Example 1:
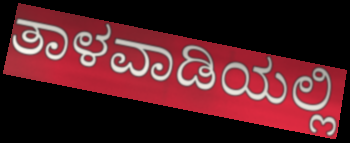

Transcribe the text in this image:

ತಾಳವಾಡಿಯಲ್ಲಿ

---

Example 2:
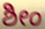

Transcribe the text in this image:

ಶೀಂ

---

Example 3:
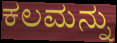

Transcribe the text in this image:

ಕಲಮನ್ನು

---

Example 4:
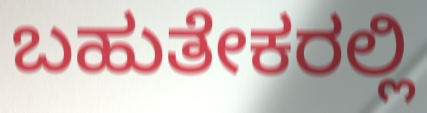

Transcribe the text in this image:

ಬಹುತೇಕರಲ್ಲಿ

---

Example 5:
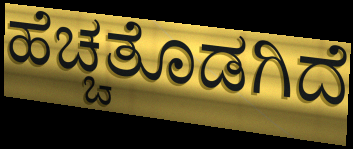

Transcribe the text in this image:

ಹೆಚ್ಚತೊಡಗಿದೆ